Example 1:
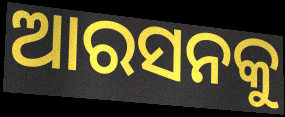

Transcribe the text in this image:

ଆରସନକୁ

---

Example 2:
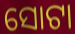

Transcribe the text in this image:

ସୋଟା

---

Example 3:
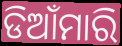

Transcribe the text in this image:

ଡିଆଁମାରି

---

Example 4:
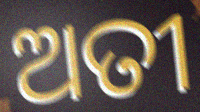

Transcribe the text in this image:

ଅତୀ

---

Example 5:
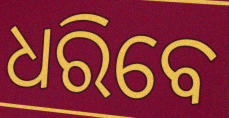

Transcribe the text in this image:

ଧରିବେ